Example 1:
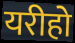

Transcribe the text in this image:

यरीहो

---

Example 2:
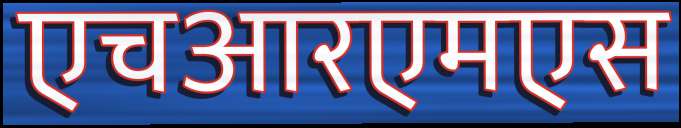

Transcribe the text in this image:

एचआरएमएस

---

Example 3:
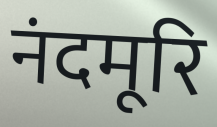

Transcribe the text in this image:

नंदमूरि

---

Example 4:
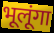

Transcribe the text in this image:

भूलूंगा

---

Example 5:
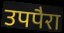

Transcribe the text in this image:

उपपैरा